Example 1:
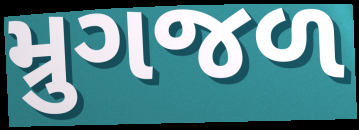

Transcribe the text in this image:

મ્રુગજળ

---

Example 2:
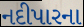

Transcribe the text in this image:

નદીપારના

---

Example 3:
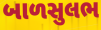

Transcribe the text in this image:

બાળસુલભ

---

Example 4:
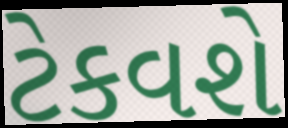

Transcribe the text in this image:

ટેકવશે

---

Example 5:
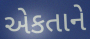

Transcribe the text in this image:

એકતાને